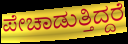
ಪೇಚಾಡುತ್ತಿದ್ದರೆ